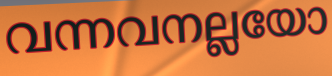
വന്നവനല്ലയോ